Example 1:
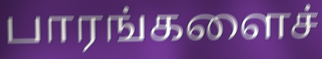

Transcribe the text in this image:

பாரங்களைச்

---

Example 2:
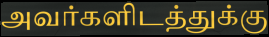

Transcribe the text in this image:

அவர்களிடத்துக்கு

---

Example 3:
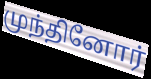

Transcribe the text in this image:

முந்தினோர்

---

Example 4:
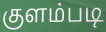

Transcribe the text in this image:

குளம்படி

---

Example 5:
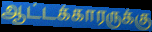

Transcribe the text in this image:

ஆட்டக்காரருக்கு